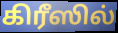
கிரீஸில்